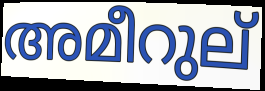
അമീറുല്